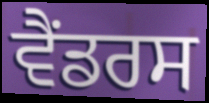
ਵੈਂਡਰਸ